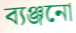
ব্যঞ্জনো